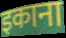
इकाना